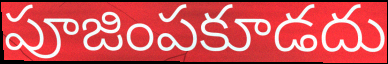
పూజింపకూడదు